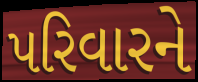
પરિવારને